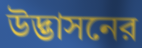
উদ্ভাসনের